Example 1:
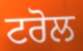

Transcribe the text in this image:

ਟਰੋਲ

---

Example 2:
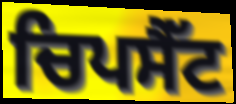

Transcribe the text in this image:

ਚਿਪਸੈੱਟ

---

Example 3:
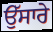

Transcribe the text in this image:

ਉੱਸਾਰੇ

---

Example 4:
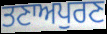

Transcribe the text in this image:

ਤਣਾਅਪੁਰਣ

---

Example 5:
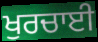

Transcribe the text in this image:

ਖੁਰਚਾਈ